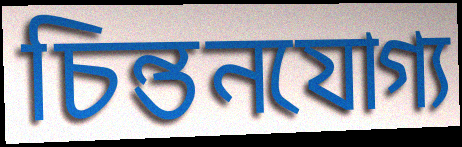
চিন্তনযোগ্য